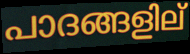
പാദങ്ങളില്